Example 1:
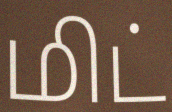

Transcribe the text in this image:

மிட்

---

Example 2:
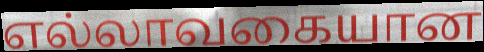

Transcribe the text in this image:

எல்லாவகையான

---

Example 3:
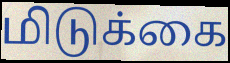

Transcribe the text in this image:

மிடுக்கை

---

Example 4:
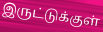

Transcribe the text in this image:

இருட்டுக்குள்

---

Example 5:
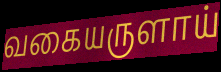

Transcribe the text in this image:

வகையருளாய்